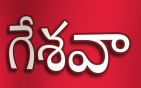
గేశవా